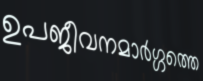
ഉപജീവനമാർഗ്ഗത്തെ